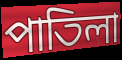
পাতিলা